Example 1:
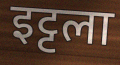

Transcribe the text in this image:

इट्टला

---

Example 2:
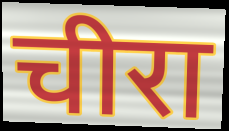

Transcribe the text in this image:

चीरा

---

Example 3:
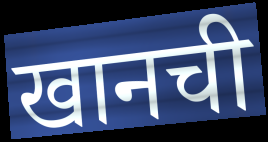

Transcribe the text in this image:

खानची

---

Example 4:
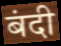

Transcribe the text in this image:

बंदी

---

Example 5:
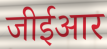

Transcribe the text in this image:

जीईआर